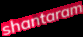
shantaram